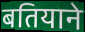
बतियाने